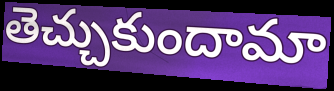
తెచ్చుకుందామా